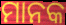
ମାନକ